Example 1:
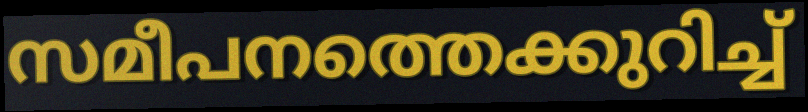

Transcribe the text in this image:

സമീപനത്തെക്കുറിച്ച്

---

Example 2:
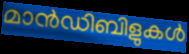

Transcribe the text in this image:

മാൻഡിബിളുകൾ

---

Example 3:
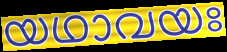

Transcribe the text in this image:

യഥാവയഃ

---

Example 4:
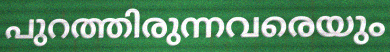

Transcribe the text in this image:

പുറത്തിരുന്നവരെയും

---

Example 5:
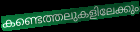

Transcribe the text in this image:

കണ്ടെത്തലുകളിലേക്കും